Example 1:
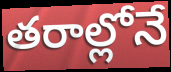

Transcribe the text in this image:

తరాల్లోనే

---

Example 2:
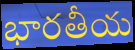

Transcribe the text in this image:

భారతీయ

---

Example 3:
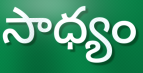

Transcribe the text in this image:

సాధ్యం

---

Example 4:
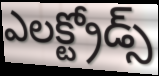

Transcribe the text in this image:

ఎలక్ట్రోడ్స్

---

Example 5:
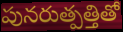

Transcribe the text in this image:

పునరుత్పత్తితో